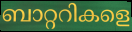
ബാറ്ററികളെ